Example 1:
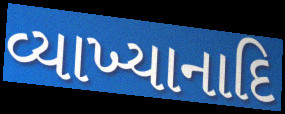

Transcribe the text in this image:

વ્યાખ્યાનાદિ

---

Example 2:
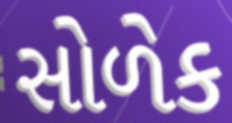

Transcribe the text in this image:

સોળેક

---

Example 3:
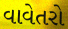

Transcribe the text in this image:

વાવેતરો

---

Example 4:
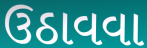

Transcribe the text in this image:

ઉઠાવવા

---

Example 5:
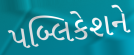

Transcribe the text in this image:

પબ્લિકેશને